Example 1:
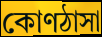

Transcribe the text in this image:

কোণঠাসা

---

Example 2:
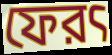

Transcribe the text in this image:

ফেরৎ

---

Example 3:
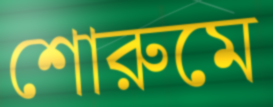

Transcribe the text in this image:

শোরুমে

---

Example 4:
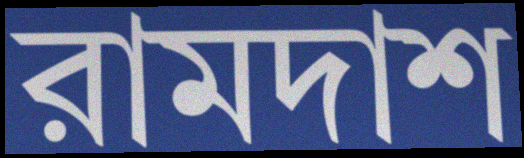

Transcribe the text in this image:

রামদাশ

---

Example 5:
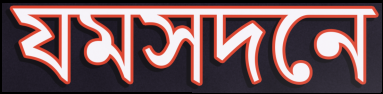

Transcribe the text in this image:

যমসদনে